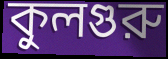
কুলগুরু